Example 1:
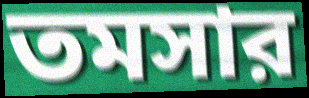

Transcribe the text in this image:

তমসার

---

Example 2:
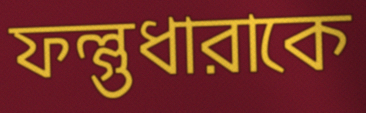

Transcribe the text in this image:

ফল্গুধারাকে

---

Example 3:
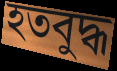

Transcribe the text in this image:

হতবুদ্ধ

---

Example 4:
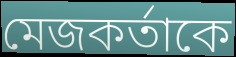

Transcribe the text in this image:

মেজকর্তাকে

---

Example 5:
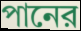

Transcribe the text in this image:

পানের